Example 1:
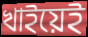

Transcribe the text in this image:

খাইয়েই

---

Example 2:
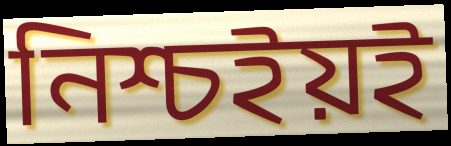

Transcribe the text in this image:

নিশ্চইয়ই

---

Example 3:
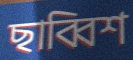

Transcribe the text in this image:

ছাব্বিশ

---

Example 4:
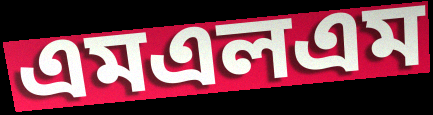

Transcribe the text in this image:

এমএলএম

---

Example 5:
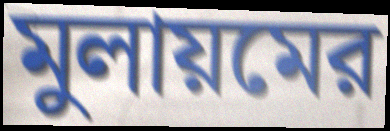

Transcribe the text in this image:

মুলায়মের